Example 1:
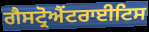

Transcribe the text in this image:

ਗੈਸਟ੍ਰੋਐਂਟਰਾਈਟਿਸ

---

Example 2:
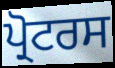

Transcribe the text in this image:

ਪ੍ਰੋਟਰਸ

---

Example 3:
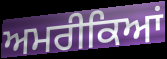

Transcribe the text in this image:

ਅਮਰੀਕਿਆਂ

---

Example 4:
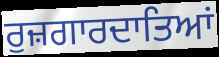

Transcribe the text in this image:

ਰੁਜ਼ਗਾਰਦਾਤਿਆਂ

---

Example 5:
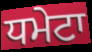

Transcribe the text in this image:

ਧਮੇਟਾ